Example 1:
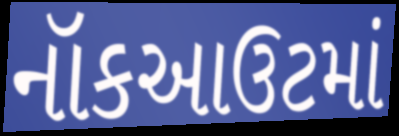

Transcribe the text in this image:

નૉકઆઉટમાં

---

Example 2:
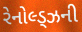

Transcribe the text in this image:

રેનોલ્ડ્ઝની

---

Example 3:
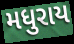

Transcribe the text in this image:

મધુરાય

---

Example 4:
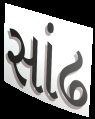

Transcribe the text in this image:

સાંઢ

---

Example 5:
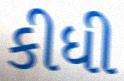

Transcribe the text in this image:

કીધી